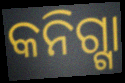
କନିଗ୍ଗା